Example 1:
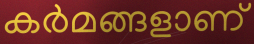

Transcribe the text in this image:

കർമങ്ങളാണ്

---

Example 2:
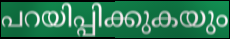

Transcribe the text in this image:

പറയിപ്പിക്കുകയും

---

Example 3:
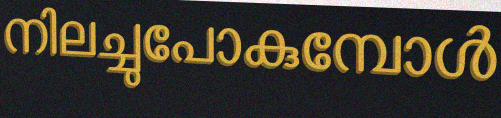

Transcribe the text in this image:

നിലച്ചുപോകുമ്പോൾ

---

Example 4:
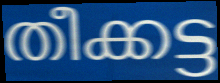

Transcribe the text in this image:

തീക്കട്ട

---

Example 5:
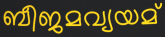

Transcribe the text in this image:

ബീജമവ്യയമ്